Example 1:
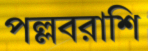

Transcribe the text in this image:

পল্লবরাশি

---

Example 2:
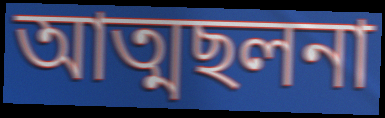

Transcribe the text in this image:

আত্মছলনা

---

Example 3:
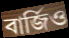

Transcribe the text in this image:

বার্জিও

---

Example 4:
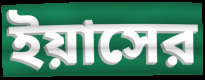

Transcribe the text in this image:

ইয়াসের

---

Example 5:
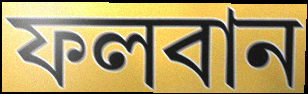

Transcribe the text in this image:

ফলবান